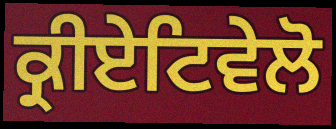
ਕ੍ਰੀਏਟਿਵੇਲੋ